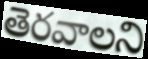
తెరవాలని